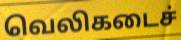
வெலிகடைச்